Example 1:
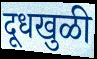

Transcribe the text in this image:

दूधखुळी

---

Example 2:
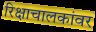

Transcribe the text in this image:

रिक्षाचालकांवर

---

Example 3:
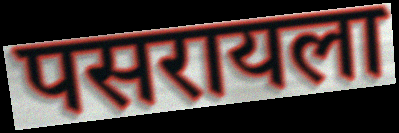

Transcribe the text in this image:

पसरायला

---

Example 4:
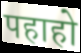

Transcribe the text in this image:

पहाहो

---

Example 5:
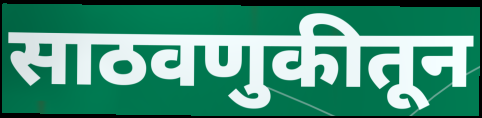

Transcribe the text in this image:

साठवणुकीतून